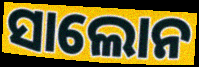
ସାଲୋନ